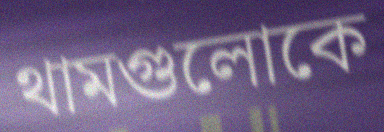
থামগুলোকে